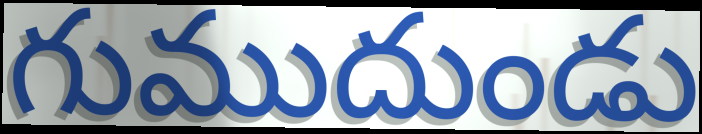
గుముదుండు